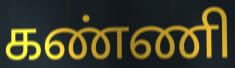
கண்ணி